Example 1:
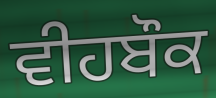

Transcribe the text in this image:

ਵੀਹਬੌਕ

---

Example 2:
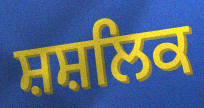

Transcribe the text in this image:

ਸ਼ਸ਼ਲਿਕ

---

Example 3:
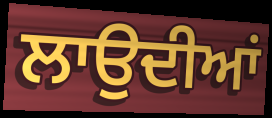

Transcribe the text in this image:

ਲਾਉਦੀਆਂ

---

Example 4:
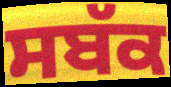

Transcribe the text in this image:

ਸਬੱਕ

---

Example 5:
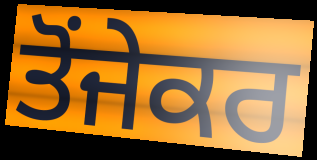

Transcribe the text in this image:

ਤੋਂਜੇਕਰ